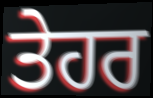
ਤੇਹਰ